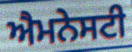
ਐਮਨੇਸਟੀ